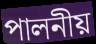
পালনীয়